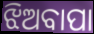
ଝିଅବାପା